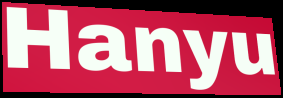
Hanyu